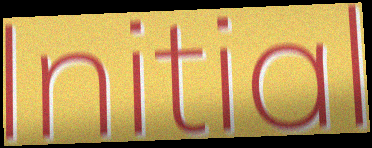
Initial